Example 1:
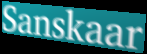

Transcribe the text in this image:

Sanskaar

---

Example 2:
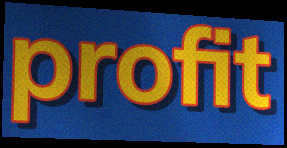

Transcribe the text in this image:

profit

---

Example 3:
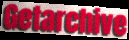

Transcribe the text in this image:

Getarchive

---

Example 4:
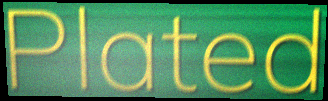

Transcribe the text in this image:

Plated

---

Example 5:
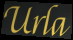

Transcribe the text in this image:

Urla